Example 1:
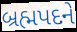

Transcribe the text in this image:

બ્રહ્મપદને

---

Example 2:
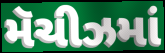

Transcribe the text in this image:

મૅચીઝમાં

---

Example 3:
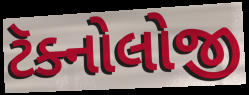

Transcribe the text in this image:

ટૅક્નોલોજી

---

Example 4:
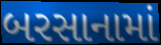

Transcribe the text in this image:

બરસાનામાં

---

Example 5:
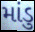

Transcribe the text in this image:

માંડુ